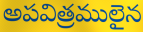
అపవిత్రములైన